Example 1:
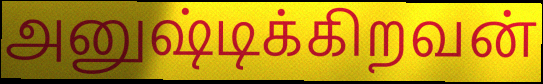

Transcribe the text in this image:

அனுஷ்டிக்கிறவன்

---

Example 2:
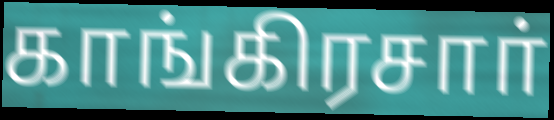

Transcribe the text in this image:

காங்கிரசார்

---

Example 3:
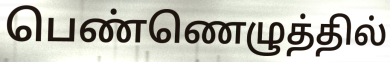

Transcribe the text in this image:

பெண்ணெழுத்தில்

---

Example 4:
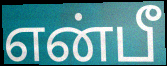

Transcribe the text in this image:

என்பீ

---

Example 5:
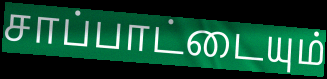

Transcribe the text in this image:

சாப்பாட்டையும்